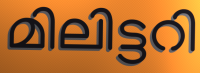
മിലിട്ടറി